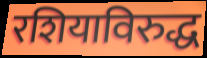
रशियाविरुद्ध